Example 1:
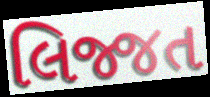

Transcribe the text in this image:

લિજ્જત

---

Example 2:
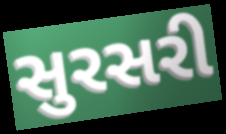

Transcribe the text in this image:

સુરસરી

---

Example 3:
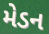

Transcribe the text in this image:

મેડન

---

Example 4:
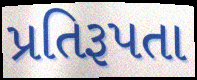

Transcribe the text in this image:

પ્રતિરૂપતા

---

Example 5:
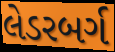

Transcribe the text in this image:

લેડરબર્ગ